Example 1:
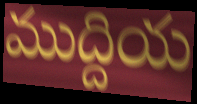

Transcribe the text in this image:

ముద్దియ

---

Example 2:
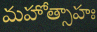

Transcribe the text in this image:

మహోత్సాహః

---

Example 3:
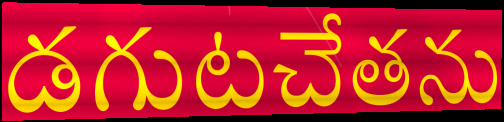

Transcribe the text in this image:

డగుటచేతను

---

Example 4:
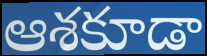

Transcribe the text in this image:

ఆశకూడా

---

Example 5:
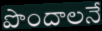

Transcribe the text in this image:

పొందాలనే